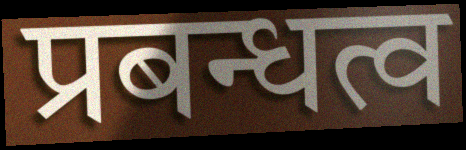
प्रबन्धत्व